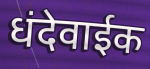
धंदेवाईक